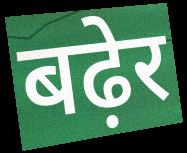
बढ़ेर